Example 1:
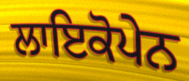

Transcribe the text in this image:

ਲਾਇਕੋਪੇਨ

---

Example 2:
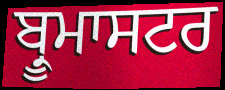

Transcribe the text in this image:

ਬ੍ਰੂਮਾਸਟਰ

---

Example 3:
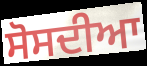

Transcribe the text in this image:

ਸੋਸਦੀਆ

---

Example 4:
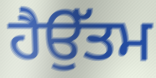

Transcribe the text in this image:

ਹੈਉੱਤਮ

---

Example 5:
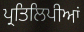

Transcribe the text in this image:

ਪ੍ਰਤਿਲਿਪੀਆਂ